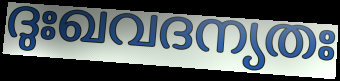
ദുഃഖവദന്യതഃ